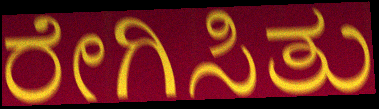
ರೇಗಿಸಿತು